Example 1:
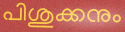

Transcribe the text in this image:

പിശുക്കനും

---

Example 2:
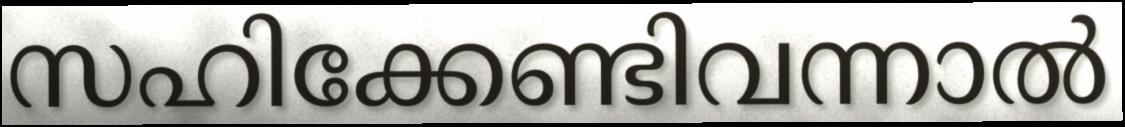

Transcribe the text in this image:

സഹിക്കേണ്ടിവന്നാൽ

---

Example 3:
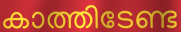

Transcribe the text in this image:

കാത്തിടേണ്ട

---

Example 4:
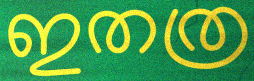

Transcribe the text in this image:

ഇതത്ര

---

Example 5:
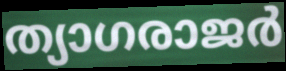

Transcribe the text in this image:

ത്യാഗരാജർ